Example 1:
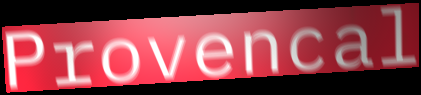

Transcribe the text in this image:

Provencal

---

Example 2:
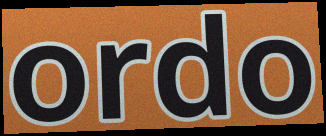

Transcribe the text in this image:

ordo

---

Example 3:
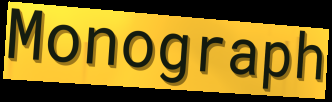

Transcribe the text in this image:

Monograph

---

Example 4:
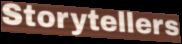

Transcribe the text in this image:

Storytellers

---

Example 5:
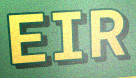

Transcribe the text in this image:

EIR